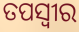
ତପସ୍ଵୀର